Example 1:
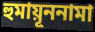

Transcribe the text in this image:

হুমায়ূননামা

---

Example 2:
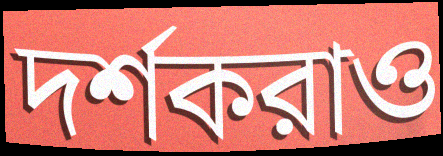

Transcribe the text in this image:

দর্শকরাও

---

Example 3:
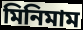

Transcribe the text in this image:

মিনিমাম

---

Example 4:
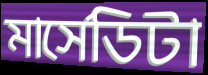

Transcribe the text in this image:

মার্সেডিটা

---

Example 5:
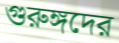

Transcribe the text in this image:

গুরুঙ্গদের